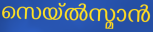
സെയ്ൽസ്മാൻ